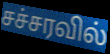
சச்சரவில்